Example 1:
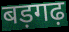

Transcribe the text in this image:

बड़गढ़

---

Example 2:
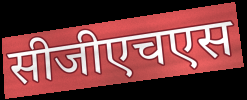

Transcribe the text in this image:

सीजीएचएस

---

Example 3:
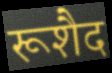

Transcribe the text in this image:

रूशैद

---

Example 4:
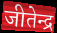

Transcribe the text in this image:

जीतेन्द्र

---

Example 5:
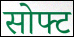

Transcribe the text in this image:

सोफ्ट